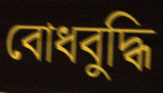
বোধবুদ্ধি